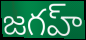
జగహ్